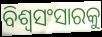
ବିଶ୍ୱସଂସାରକୁ